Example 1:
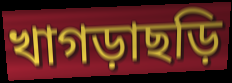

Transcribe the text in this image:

খাগড়াছড়ি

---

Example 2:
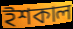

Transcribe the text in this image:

ইশকাল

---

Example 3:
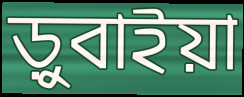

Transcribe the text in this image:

ড়ুবাইয়া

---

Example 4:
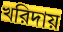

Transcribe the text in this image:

খরিদায়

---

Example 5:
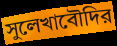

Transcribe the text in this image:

সুলেখাবৌদির